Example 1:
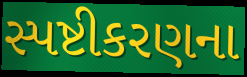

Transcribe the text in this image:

સ્પષ્ટીકરણના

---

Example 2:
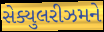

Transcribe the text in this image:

સેક્યુલરીઝમને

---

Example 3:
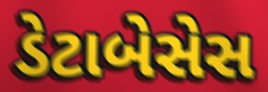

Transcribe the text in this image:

ડેટાબેસેસ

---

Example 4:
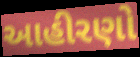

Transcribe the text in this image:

આહીરણો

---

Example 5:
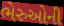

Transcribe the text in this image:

ભેરુઓની